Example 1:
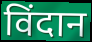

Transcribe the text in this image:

विंदान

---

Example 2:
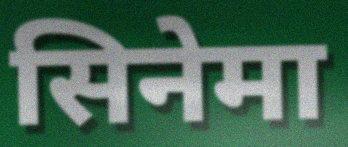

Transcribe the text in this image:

सिनेमा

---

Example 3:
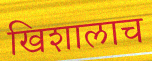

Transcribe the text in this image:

खिशालाच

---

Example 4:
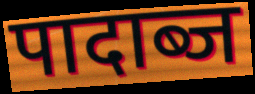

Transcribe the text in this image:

पादाब्ज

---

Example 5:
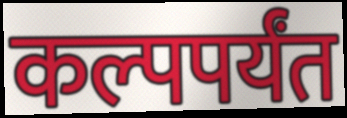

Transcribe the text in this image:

कल्पपर्यंत